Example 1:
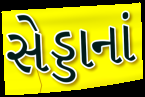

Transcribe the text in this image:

સેડ્ડાનાં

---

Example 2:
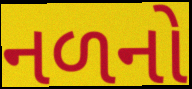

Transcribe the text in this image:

નળનો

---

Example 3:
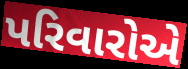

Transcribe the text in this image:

પરિવારોએ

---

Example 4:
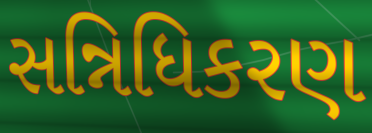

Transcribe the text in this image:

સન્નિધિકરણ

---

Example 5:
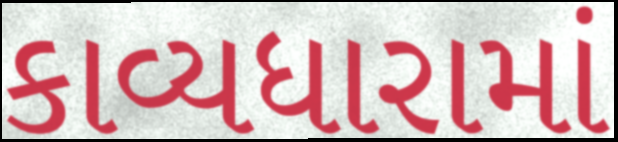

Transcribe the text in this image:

કાવ્યધારામાં